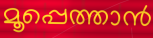
മൂപ്പെത്താൻ